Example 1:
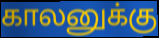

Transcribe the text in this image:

காலனுக்கு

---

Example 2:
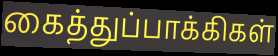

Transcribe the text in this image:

கைத்துப்பாக்கிகள்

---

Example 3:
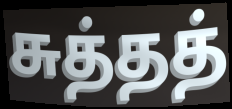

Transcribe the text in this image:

சுத்தத்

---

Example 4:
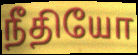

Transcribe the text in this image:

நீதியோ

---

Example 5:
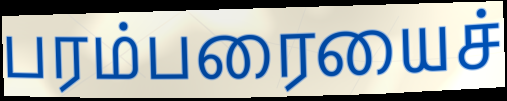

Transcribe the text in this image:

பரம்பரையைச்